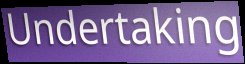
Undertaking